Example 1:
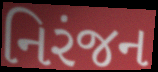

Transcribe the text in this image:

નિરંજન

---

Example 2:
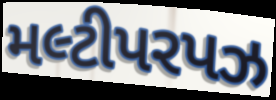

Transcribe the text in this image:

મલ્ટીપરપઝ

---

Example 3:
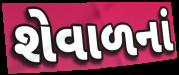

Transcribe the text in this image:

શેવાળનાં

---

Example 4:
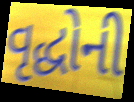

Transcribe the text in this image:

વૃદ્ધોની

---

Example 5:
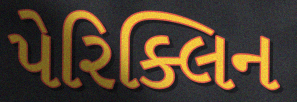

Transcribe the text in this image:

પેરિક્લિન